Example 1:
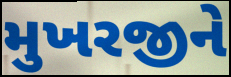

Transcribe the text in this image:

મુખરજીને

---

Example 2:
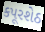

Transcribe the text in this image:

કપૂરશેઠ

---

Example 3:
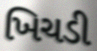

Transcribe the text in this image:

ખિચડી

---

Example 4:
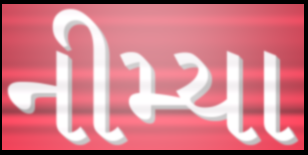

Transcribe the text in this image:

નીમ્યા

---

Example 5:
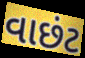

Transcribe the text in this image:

વાછંટ